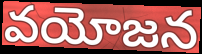
వయోజన